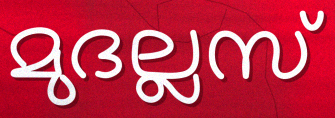
മുദല്ലസ്